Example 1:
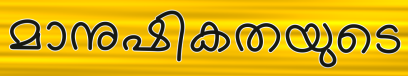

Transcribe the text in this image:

മാനുഷികതയുടെ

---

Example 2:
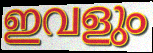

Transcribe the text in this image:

ഇവളും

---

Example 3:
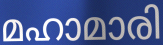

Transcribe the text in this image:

മഹാമാരി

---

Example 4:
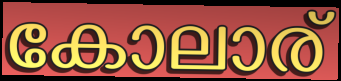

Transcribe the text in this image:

കോലാര്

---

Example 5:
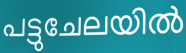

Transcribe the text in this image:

പട്ടുചേലയിൽ